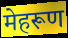
मेहरूण